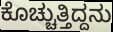
ಕೊಚ್ಚುತ್ತಿದ್ದನು